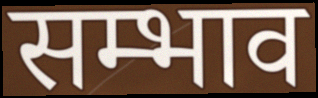
सम्भाव